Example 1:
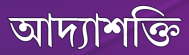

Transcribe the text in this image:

আদ্যাশক্তি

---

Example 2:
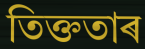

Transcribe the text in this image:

তিক্ততাৰ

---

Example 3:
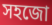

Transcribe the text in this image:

সহজো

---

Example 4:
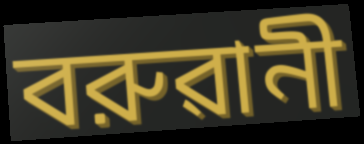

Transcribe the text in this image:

বৰুৱানী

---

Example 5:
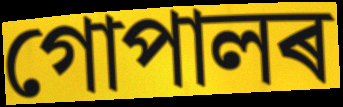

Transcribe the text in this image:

গোপালৰ